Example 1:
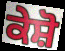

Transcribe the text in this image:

ਕੇਸ਼ੋ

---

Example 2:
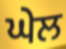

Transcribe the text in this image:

ਘੇਲ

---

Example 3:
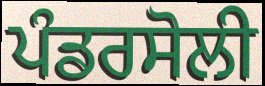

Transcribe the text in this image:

ਪੰਡਰਸੋਲੀ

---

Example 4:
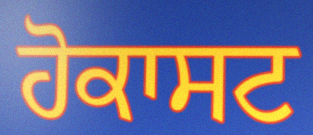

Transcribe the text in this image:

ਹੋਕਾਸਟ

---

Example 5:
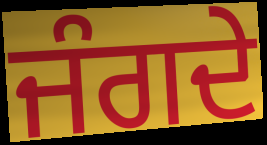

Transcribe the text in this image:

ਜੰਗਦੇ